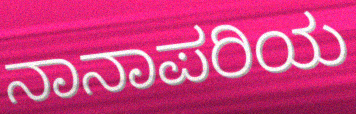
ನಾನಾಪರಿಯ